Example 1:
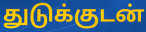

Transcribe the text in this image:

துடுக்குடன்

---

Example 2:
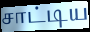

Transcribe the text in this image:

சாட்டிய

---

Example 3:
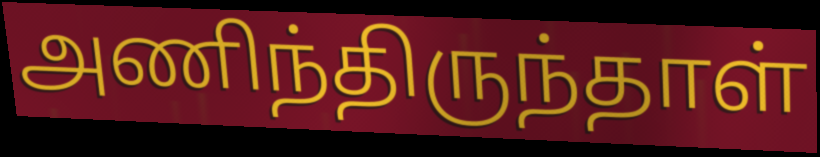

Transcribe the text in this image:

அணிந்திருந்தாள்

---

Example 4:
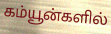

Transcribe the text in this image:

கம்யூன்களில்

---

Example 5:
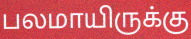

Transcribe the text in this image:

பலமாயிருக்கு